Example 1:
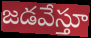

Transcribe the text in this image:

జడవేస్తూ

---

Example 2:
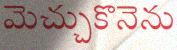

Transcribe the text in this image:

మెచ్చుకొనెను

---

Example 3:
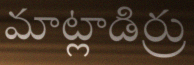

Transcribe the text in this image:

మాట్లాడిర్రు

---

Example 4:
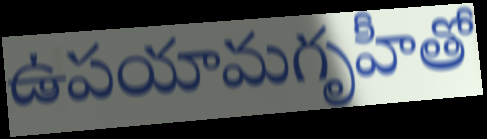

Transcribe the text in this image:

ఉపయామగృహీతో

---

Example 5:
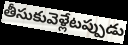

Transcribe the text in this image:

తీసుకువెళ్లేటప్పుడు